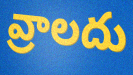
వ్రాలదు